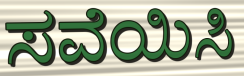
ಸವೆಯಿಸಿ